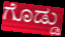
ಗೊಡ್ಡು